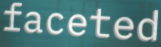
faceted